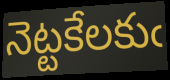
నెట్టకేలకుఁ